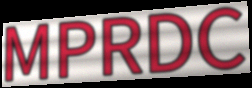
MPRDC